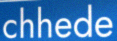
chhede